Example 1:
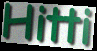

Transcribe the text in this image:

Hitti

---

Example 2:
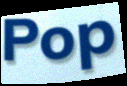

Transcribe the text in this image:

Pop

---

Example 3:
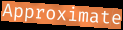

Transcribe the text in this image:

Approximate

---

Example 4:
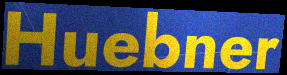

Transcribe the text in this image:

Huebner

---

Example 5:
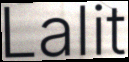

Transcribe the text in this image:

Lalit